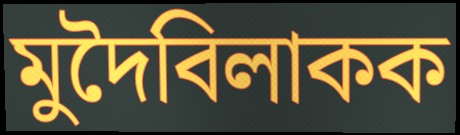
মুদৈবিলাকক